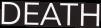
DEATH